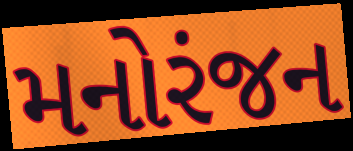
મનોરંજન